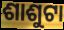
ଶାଶୁଟା